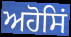
ਅਹੋਸਿਂ